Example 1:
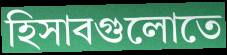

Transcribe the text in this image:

হিসাবগুলোতে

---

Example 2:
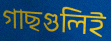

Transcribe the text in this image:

গাছগুলিই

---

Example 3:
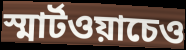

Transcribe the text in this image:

স্মার্টওয়াচেও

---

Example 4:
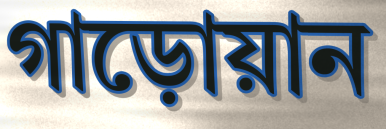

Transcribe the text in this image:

গাড়োয়ান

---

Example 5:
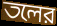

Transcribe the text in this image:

তলের